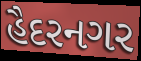
હૈદરનગર